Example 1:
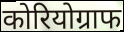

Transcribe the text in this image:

कोरियोग्राफ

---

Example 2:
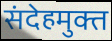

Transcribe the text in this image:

संदेहमुक्त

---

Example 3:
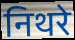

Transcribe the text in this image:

निथरे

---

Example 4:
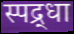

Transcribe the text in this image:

स्पद्र्धा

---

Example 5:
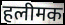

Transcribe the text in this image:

हलीमक